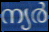
ന്യർ